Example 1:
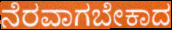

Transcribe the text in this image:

ನೆರವಾಗಬೇಕಾದ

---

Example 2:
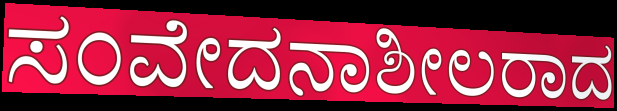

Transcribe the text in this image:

ಸಂವೇದನಾಶೀಲರಾದ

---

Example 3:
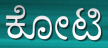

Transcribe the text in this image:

ಕೋಟಿ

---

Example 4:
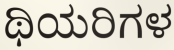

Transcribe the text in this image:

ಥಿಯರಿಗಳ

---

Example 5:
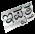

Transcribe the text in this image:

ಇಪ್ಪತ್ತ